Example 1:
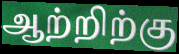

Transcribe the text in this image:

ஆற்றிற்கு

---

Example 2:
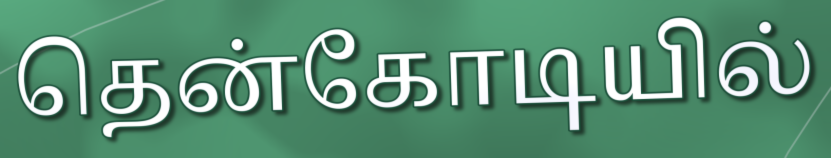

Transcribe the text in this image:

தென்கோடியில்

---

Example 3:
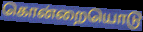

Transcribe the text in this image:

கொன்றையொடு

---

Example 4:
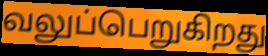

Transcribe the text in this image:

வலுப்பெறுகிறது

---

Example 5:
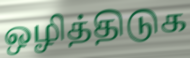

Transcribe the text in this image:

ஒழித்திடுக